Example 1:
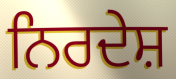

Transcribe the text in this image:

ਨਿਰਦੇਸ਼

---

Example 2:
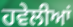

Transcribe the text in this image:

ਹਵੇਲੀਆਂ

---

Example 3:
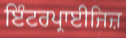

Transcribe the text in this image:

ਇੰਟਰਪ੍ਰਾਈਜਿਜ਼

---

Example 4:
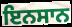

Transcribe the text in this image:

ਇਨਸਾਨ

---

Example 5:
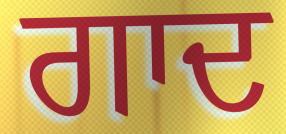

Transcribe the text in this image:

ਗਾਦ